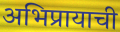
अभिप्रायाची